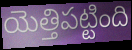
యెత్తిపట్టింది